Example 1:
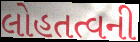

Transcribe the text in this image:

લોહતત્વની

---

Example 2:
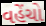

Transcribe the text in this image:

વહેંચો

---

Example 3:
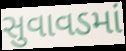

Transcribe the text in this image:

સુવાવડમાં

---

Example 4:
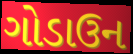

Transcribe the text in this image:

ગોડાઉન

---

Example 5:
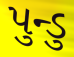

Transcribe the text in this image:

પુન્ડુ